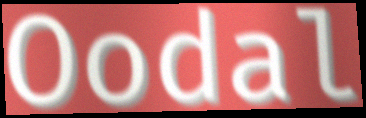
Oodal